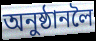
অনুষ্ঠানলৈ